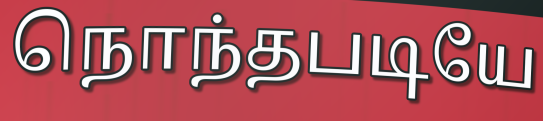
நொந்தபடியே